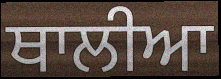
ਥਾਲੀਆ